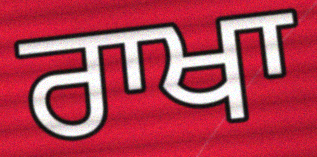
ਰਾਖਾ